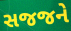
સજજને